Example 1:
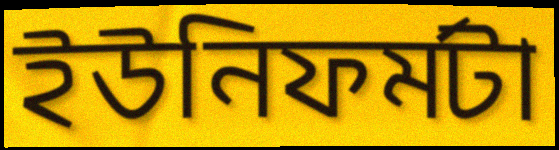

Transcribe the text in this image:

ইউনিফর্মটা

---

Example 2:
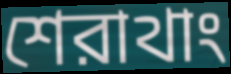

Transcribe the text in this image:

শেরাথাং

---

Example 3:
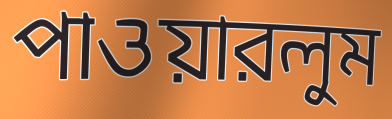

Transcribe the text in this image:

পাওয়ারলুম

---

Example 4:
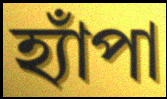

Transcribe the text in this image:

হ্যাঁপা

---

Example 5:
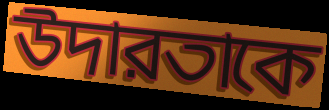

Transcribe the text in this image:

উদারতাকে